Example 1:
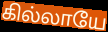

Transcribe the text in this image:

கில்லாயே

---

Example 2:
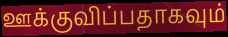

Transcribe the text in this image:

ஊக்குவிப்பதாகவும்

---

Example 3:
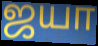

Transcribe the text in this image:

ஜயா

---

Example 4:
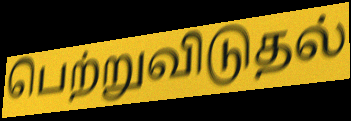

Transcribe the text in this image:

பெற்றுவிடுதல்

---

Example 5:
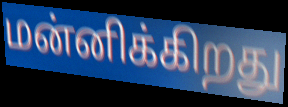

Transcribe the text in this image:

மன்னிக்கிறது